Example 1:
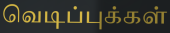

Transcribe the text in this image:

வெடிப்புக்கள்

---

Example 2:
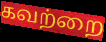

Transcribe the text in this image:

கவற்றை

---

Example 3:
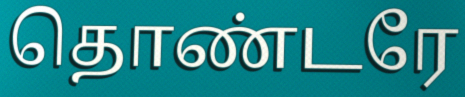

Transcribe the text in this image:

தொண்டரே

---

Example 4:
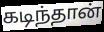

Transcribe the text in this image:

கடிந்தான்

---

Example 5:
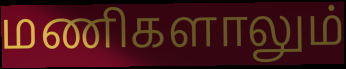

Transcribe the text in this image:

மணிகளாலும்